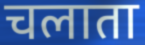
चलाता